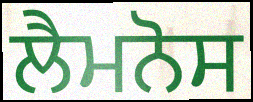
ਲੈਮਨੋਸ